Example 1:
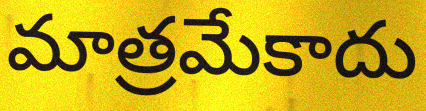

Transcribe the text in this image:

మాత్రమేకాదు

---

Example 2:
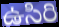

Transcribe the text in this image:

ఉసిరి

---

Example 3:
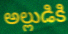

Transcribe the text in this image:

అల్లుడికి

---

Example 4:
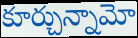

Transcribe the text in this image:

కూర్చున్నామో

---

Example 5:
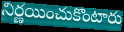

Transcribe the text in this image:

నిర్ణయించుకొంటారు